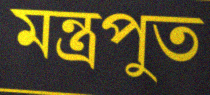
মন্ত্রপুত